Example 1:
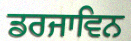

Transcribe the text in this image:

ਡਰਜਾਵਿਨ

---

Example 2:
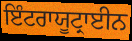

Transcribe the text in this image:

ਇੰਟਰਾਯੂਟ੍ਰਾਈਨ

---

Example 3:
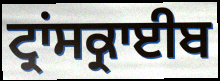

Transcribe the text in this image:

ਟ੍ਰਾਂਸਕ੍ਰਾਈਬ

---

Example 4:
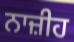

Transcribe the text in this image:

ਨਾਜ਼ੀਹ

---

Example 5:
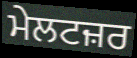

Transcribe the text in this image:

ਮੇਲਟਜ਼ਰ